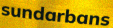
sundarbans